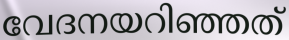
വേദനയറിഞ്ഞത്